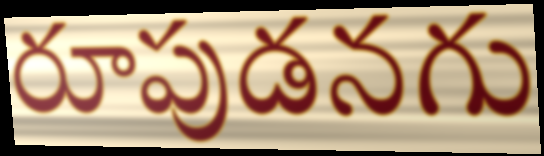
రూపుడనగు